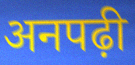
अनपढ़ी